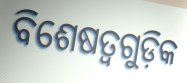
ବିଶେଷତ୍ୱଗୁଡ଼ିକ